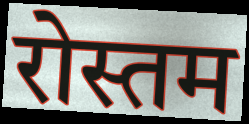
रोस्तम